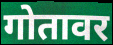
गोतावर